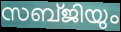
സബ്ജിയും